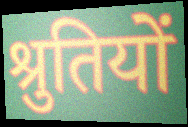
श्रुतियों